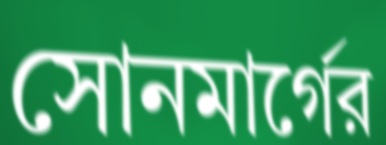
সোনমার্গের